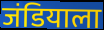
जंडियाला